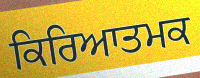
ਕਿਰਿਆਤਮਕ